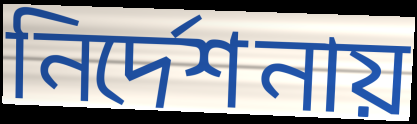
নির্দেশনায়